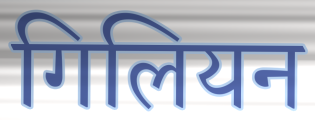
गिलियन